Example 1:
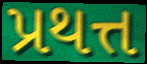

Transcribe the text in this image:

પ્રથત્ત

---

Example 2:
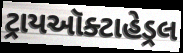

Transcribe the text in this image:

ટ્રાયઑક્ટાહેડ્રલ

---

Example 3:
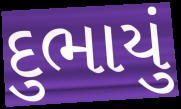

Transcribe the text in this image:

દુભાયું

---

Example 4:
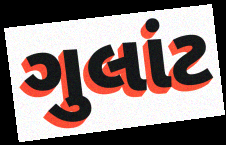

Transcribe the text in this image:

ગુલાંટ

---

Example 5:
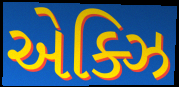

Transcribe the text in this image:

એક્ઝિ